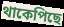
থাকেপিছে